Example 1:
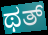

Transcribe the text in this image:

ಥತ್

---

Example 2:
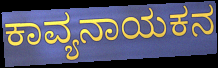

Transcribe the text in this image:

ಕಾವ್ಯನಾಯಕನ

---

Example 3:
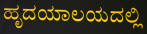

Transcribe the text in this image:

ಹೃದಯಾಲಯದಲ್ಲಿ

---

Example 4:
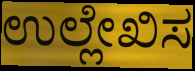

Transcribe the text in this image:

ಉಲ್ಲೇಖಿಸ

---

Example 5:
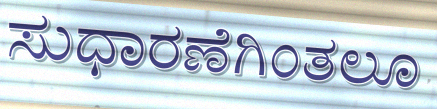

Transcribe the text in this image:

ಸುಧಾರಣೆಗಿಂತಲೂ